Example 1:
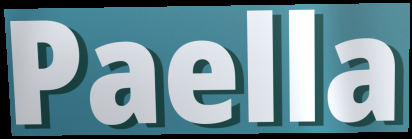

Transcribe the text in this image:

Paella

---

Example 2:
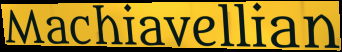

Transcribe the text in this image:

Machiavellian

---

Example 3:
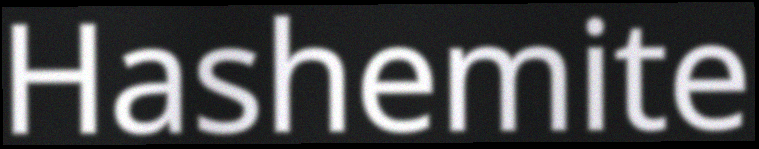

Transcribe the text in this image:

Hashemite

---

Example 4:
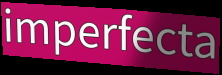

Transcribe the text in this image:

imperfecta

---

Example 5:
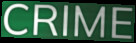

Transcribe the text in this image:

CRIME